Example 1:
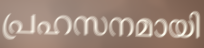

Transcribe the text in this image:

പ്രഹസനമായി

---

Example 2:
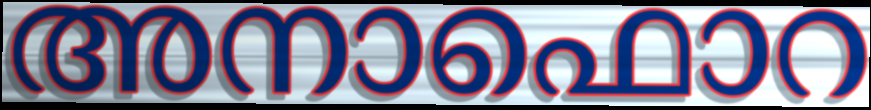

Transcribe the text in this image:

അനാഫൊറ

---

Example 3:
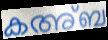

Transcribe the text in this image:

കഅ്ബ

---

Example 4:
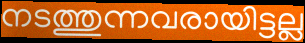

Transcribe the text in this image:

നടത്തുന്നവരായിട്ടല്ല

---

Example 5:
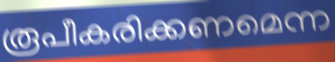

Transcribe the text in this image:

രൂപീകരിക്കണമെന്ന